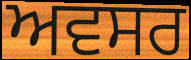
ਅਵਸਰ